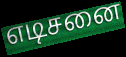
எடிசனை